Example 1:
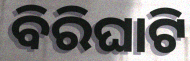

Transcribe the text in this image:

ବିରିଘାଟି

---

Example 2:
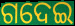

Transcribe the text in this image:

ଗଦେଇ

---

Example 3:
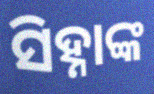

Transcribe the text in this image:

ସିହ୍ନାଙ୍କ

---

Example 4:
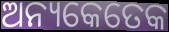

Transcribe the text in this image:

ଅନ୍ୟକେତେକ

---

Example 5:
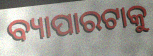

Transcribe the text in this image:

ବ୍ୟାପାରଟାକୁ